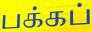
பக்கப்